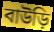
বাউড়ি